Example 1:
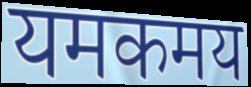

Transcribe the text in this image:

यमकमय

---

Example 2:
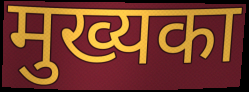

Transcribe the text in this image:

मुख्यका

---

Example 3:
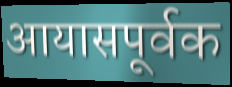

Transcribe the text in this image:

आयासपूर्वक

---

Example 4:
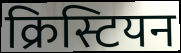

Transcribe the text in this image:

क्रिस्टियन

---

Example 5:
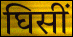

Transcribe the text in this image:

घिसीं